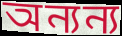
অন্যন্য